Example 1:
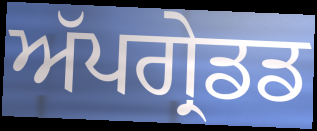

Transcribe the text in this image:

ਅੱਪਗ੍ਰੇਡਡ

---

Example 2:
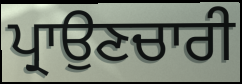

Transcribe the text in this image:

ਪ੍ਰਾਉਣਚਾਰੀ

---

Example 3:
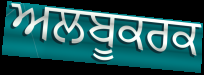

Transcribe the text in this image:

ਅਲਬੂਕਰਕ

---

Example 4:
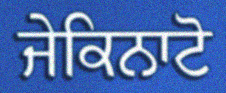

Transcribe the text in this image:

ਜੇਕਿਨਾਟੋ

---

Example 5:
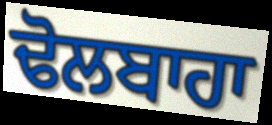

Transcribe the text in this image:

ਢੋਲਬਾਹਾ